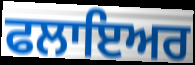
ਫਲਾਇਅਰ